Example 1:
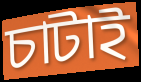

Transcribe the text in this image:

চাটাই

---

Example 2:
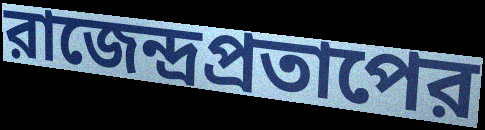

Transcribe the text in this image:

রাজেন্দ্রপ্রতাপের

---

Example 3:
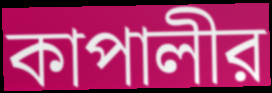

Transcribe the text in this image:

কাপালীর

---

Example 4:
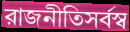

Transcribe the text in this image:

রাজনীতিসর্বস্ব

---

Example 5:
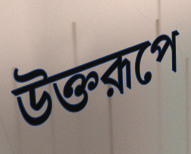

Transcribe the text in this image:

উক্তরূপে